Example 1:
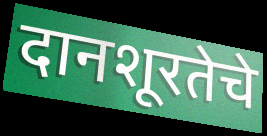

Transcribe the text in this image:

दानशूरतेचे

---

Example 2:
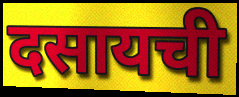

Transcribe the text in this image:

दसायची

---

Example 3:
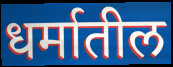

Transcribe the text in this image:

धर्मातील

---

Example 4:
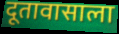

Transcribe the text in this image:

दूतावासाला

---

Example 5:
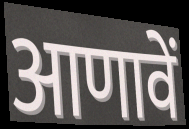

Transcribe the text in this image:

आणावें